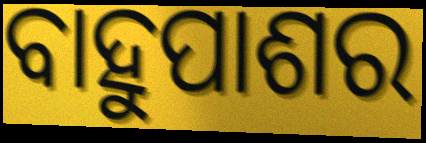
ବାହୁପାଶର